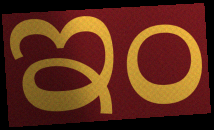
ఇం